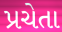
પ્રચેતા